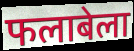
फलाबेला